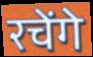
रचेंगे